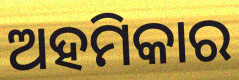
ଅହମିକାର